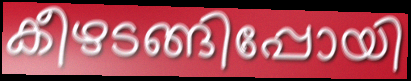
കീഴടങ്ങിപ്പോയി